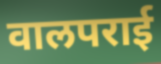
वालपराई